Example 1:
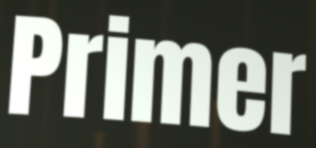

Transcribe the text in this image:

Primer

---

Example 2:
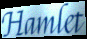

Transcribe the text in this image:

Hamlet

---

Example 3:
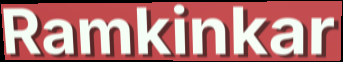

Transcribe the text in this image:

Ramkinkar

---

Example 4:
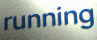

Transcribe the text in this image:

running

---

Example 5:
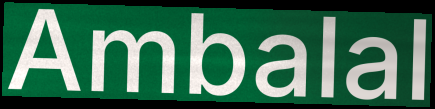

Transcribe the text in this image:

Ambalal